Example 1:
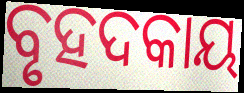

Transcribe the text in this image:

ବୃହଦକାୟ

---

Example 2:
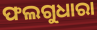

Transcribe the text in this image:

ଫଲଗୁଧାରା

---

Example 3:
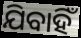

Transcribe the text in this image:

ଯିବାହିଁ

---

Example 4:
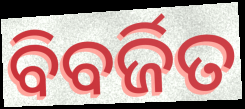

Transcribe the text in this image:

ବିବର୍ଜିତ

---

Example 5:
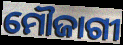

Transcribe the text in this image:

ମୌଜାଗୀ